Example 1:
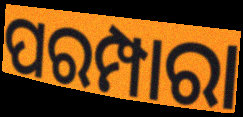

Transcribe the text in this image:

ପରମ୍ପାରା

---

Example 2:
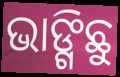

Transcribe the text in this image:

ଭାଙ୍ଗିଛୁ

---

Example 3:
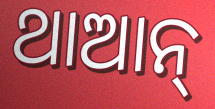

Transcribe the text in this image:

ଥାଆନ୍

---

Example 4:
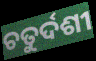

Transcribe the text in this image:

ଚତୁର୍ଦଶୀ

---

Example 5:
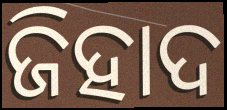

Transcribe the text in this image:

ଜିହାଦ